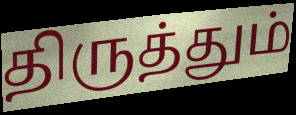
திருத்தும்